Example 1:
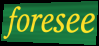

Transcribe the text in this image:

foresee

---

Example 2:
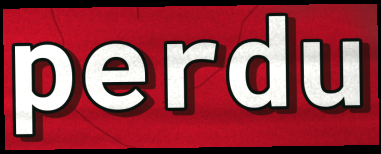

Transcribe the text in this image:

perdu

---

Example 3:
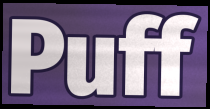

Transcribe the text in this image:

Puff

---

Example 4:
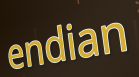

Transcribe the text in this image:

endian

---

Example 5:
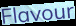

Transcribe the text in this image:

Flavour